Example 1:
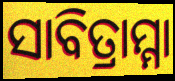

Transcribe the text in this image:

ସାବିତ୍ରାମ୍ମା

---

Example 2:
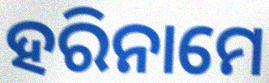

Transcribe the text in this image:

ହରିନାମେ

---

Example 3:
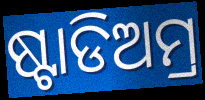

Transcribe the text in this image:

ଷ୍ଟାଡିଅମ୍ର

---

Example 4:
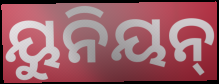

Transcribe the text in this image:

ୟୁନିୟନ୍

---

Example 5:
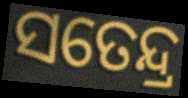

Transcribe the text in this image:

ସତେନ୍ଦ୍ର